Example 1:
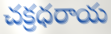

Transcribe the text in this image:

చక్రధరాయ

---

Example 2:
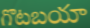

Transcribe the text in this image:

గొటబయా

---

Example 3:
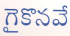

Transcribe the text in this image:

గైకొనవే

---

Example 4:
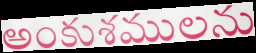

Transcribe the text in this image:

అంకుశములను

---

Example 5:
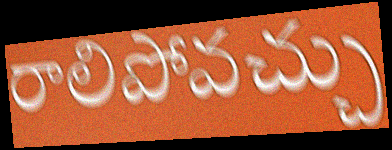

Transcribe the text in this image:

రాలిపోవచ్చు